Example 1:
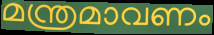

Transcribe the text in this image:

മന്ത്രമാവണം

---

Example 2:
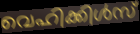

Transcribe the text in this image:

വെഹിക്കിൾസ്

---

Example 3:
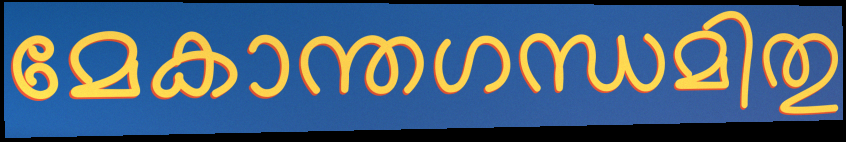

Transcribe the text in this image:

മേകാന്തഗന്ധമിതു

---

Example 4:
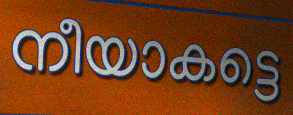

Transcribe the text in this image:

നീയാകട്ടെ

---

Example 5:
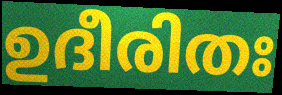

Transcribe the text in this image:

ഉദീരിതഃ